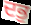
ਦਭੁ